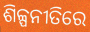
ଶିଳ୍ପନୀତିରେ